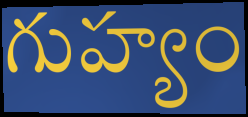
గుహ్యం